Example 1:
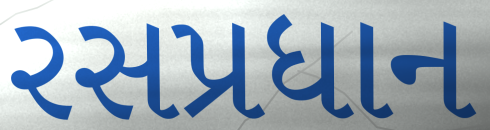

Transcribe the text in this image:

રસપ્રધાન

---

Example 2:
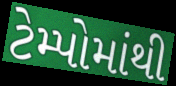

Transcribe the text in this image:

ટેમ્પોમાંથી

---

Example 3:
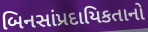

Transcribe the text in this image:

બિનસાંપ્રદાયિકતાનો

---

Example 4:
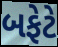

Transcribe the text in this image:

બફેટે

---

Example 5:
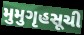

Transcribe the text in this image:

મુમુગૃહસૂચી